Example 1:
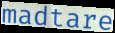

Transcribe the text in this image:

madtare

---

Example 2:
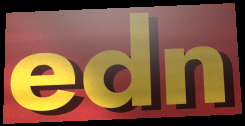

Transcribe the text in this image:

edn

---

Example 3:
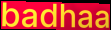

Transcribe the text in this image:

badhaa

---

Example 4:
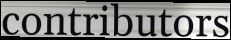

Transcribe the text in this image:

contributors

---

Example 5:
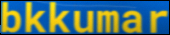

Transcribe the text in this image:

bkkumar